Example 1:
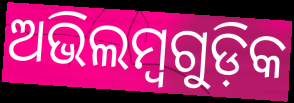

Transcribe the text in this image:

ଅଭିଲମ୍ବଗୁଡ଼ିକ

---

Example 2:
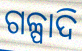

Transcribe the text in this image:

ଗଳ୍ପାଦି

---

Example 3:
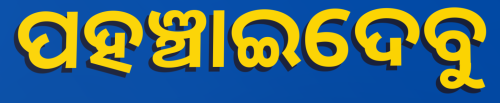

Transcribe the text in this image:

ପହଞ୍ଚାଇଦେବୁ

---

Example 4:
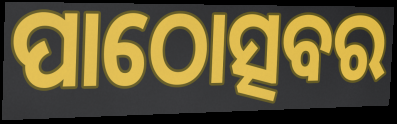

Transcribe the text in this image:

ପାଠୋତ୍ସବର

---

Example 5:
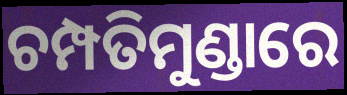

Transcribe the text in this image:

ଚମ୍ପତିମୁଣ୍ଡାରେ